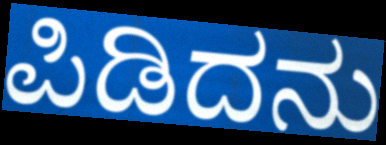
ಪಿಡಿದನು